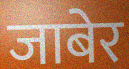
जाबेर